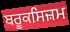
ਬਰੂਕਸਿਜ਼ਮ